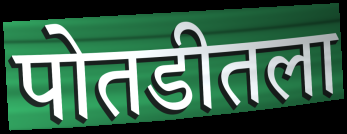
पोतडीतला